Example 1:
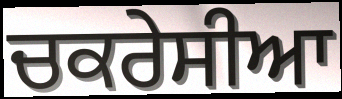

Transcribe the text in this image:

ਚਕਰੇਸੀਆ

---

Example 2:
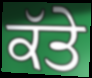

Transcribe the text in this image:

ਕੱਤੇ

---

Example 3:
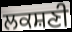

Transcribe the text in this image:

ਲਕਸ਼ਣੀ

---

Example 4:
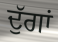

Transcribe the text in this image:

ਦੁੱਗਾਂ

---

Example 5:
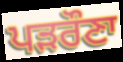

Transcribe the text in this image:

ਪੜਰੌਣਾ